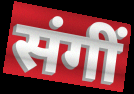
संगीं